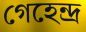
গেহেন্দ্র